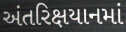
અંતરિક્ષયાનમાં